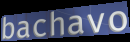
bachavo